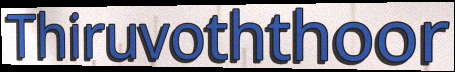
Thiruvoththoor